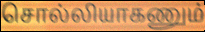
சொல்லியாகணும்